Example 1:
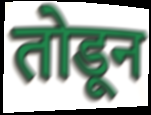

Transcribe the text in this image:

तोडून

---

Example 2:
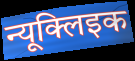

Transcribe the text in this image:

न्यूक्‍लिइक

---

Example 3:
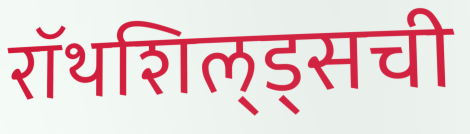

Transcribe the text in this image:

रॉथशिल्ड्सची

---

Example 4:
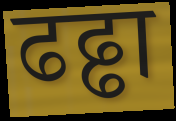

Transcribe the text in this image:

ढढ्ढा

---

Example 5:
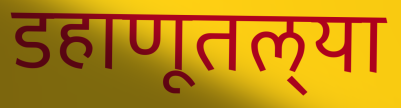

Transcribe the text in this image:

डहाणूतल्या